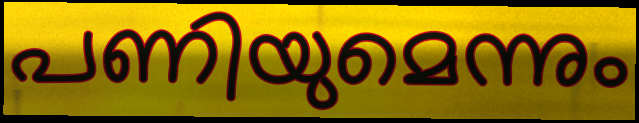
പണിയുമെന്നും